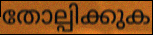
തോല്പിക്കുക